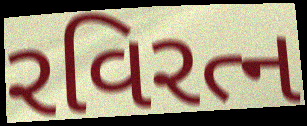
રવિરત્ન